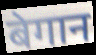
बेगान